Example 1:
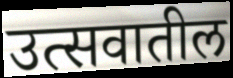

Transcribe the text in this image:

उत्सवातील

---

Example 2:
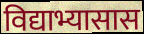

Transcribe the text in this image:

विद्याभ्यासास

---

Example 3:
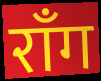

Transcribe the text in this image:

रॉंग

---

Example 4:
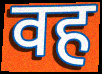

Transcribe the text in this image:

वह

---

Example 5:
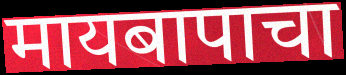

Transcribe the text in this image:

मायबापाचा